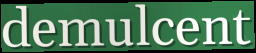
demulcent